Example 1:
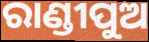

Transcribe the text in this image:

ରାଣ୍ଡୀପୁଅ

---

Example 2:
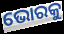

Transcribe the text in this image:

ଭୋରକୁ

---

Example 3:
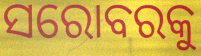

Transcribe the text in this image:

ସରୋବରକୁ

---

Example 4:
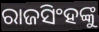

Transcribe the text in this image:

ରାଜସିଂହଙ୍କୁ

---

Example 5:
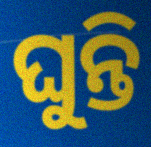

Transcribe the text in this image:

ଘୁନ୍ତି